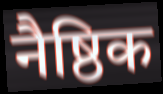
नैष्ठिक